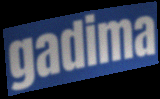
gadima